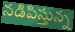
నడిపిస్తున్న